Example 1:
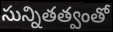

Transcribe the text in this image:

సున్నితత్వంతో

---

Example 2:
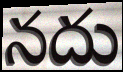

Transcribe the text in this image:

నదు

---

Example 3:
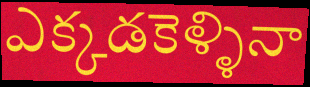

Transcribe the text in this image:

ఎక్కడకెళ్ళినా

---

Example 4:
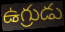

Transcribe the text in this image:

ఉగ్రుడు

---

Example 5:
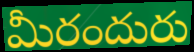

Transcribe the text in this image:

మీరందురు